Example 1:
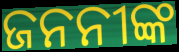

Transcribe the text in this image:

ଜନନୀଙ୍କ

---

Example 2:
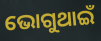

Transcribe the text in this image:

ଭୋଗୁଥାଇଁ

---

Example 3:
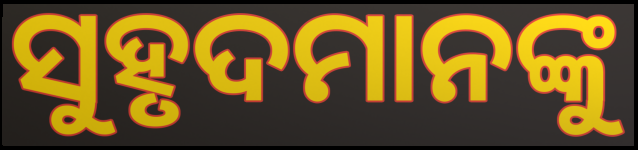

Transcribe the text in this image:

ସୁହୃଦମାନଙ୍କୁ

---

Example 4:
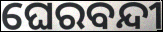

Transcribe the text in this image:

ଘେରବନ୍ଦୀ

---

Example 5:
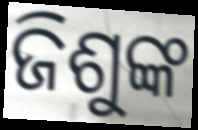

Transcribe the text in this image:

ଜିଶୁଙ୍କ